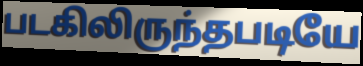
படகிலிருந்தபடியே